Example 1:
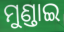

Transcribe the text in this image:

ମୁଣ୍ଡାଇ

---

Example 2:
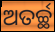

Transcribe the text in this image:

ଅତର୍ଚ୍ଛ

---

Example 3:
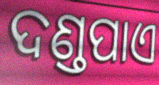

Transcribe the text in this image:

ଦଣ୍ଡପାଏ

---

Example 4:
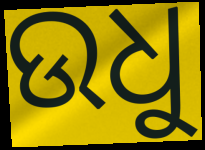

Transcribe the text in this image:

ଉଧୁ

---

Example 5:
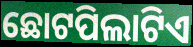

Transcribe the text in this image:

ଛୋଟପିଲାଟିଏ